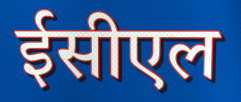
ईसीएल